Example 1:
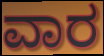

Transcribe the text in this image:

ವಾರ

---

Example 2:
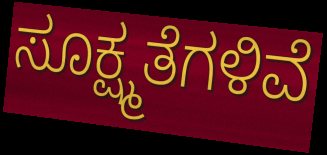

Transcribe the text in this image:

ಸೂಕ್ಷ್ಮತೆಗಳಿವೆ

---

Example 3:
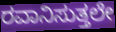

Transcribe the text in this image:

ರವಾನಿಸುತ್ತಲೇ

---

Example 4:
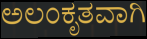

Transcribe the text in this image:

ಅಲಂಕೃತವಾಗಿ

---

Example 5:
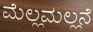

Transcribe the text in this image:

ಮೆಲ್ಲಮಲ್ಲನೆ